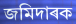
জমিদাৰক